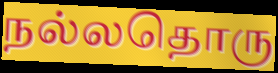
நல்லதொரு